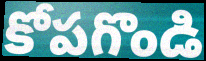
కోపగొండి